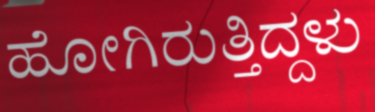
ಹೋಗಿರುತ್ತಿದ್ದಳು